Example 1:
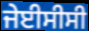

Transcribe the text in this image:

ਜੇਈਸੀਸੀ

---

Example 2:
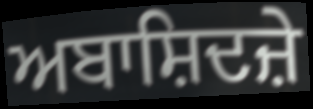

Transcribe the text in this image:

ਅਬਾਸ਼ਿਦਜ਼ੇ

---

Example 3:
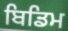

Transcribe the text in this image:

ਬਿਡਿਮ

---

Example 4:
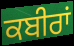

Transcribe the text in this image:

ਕਬੀਰਾਂ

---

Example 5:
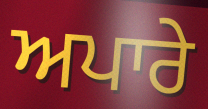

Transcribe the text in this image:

ਅਪਾਰੇ